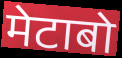
मेटाबो